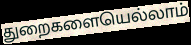
துறைகளையெல்லாம்